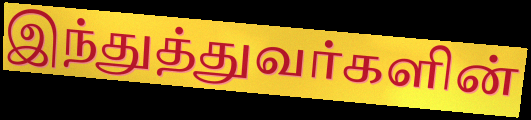
இந்துத்துவர்களின்